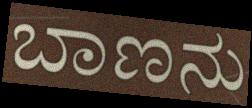
ಬಾಣನು